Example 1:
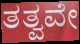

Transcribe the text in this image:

ತತ್ವವೇ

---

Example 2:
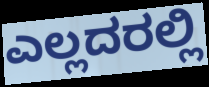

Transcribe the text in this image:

ಎಲ್ಲದರಲ್ಲಿ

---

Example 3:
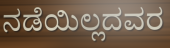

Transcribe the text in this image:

ನಡೆಯಿಲ್ಲದವರ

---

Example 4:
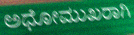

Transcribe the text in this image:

ಅಧೋಮುಖರಾಗಿ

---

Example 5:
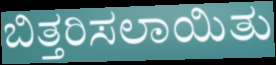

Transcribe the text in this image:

ಬಿತ್ತರಿಸಲಾಯಿತು